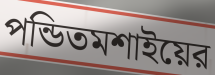
পন্ডিতমশাইয়ের